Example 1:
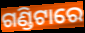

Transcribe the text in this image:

ଗଣ୍ଡିଟାରେ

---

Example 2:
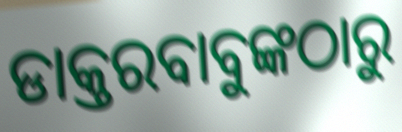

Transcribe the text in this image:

ଡାକ୍ତରବାବୁଙ୍କଠାରୁ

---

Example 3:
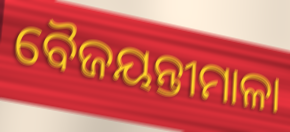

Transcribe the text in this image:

ବୈଜୟନ୍ତୀମାଳା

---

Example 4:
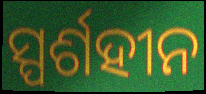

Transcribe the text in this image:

ସ୍ପର୍ଶହୀନ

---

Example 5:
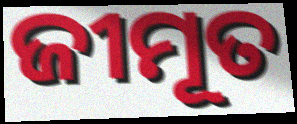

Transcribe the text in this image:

ଜୀମୂତ